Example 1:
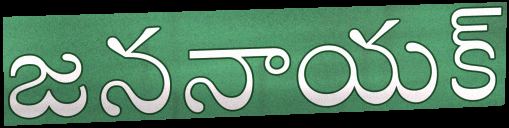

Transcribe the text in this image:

జననాయక్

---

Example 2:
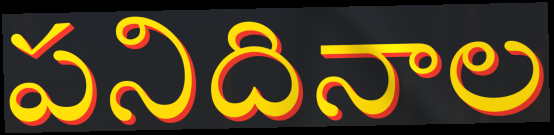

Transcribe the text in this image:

పనిదినాల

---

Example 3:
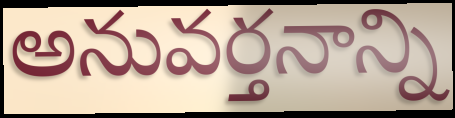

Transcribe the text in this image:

అనువర్తనాన్ని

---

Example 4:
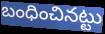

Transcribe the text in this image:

బంధించినట్టు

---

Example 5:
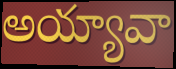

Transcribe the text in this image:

అయ్యావా